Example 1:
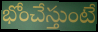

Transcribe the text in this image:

భోంచేస్తుంటే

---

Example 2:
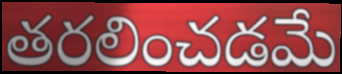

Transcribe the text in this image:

తరలించడమే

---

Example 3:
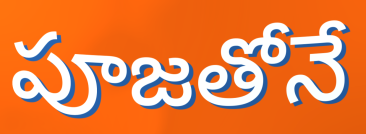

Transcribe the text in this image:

పూజతోనే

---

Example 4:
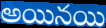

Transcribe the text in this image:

అయినయి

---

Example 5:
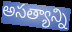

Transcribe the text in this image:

అసత్యాన్ని